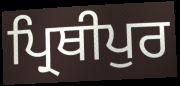
ਪ੍ਰਿਥੀਪੁਰ